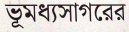
ভূমধ্যসাগরের